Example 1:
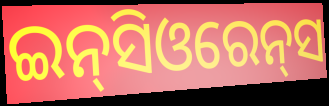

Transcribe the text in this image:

ଇନ୍‌ସିଓରେନ୍‌ସ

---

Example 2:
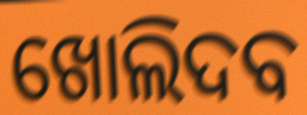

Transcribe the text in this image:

ଖୋଲିଦବ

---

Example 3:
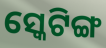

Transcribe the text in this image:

ସ୍କେଟିଙ୍ଗ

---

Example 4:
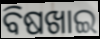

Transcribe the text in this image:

ବିଷଖାଇ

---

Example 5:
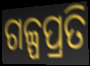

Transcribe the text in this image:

ଗଳ୍ପପ୍ରତି